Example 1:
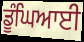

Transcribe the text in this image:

ਡੂੰਘਿਆਈ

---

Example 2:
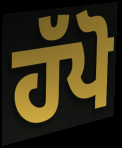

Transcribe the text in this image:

ਹੱਪੋ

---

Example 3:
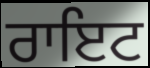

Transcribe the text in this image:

ਰਾਇਟ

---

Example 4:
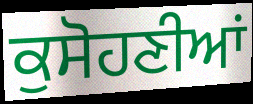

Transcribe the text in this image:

ਕੁਸੋਹਣੀਆਂ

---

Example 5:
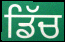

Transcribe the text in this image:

ਡਿੱਚ